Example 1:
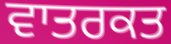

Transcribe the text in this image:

ਵਾਤਰਕਤ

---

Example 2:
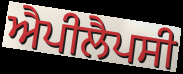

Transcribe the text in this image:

ਐਪੀਲੈਪਸੀ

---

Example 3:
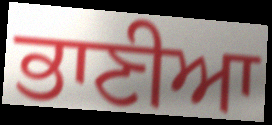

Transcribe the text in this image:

ਭਾਣੀਆ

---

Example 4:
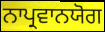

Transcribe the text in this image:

ਨਾਪ੍ਰਵਾਨਯੋਗ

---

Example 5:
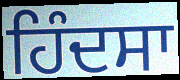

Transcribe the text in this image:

ਹਿੰਦਸਾ